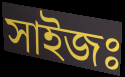
সাইজঃ